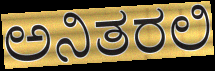
ಅನಿತರಲಿ